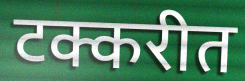
टक्करीत